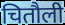
चितौली